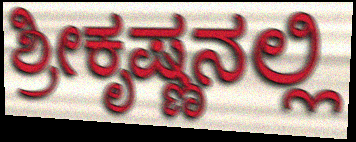
ಶ್ರೀಕೃಷ್ಣನಲ್ಲಿ